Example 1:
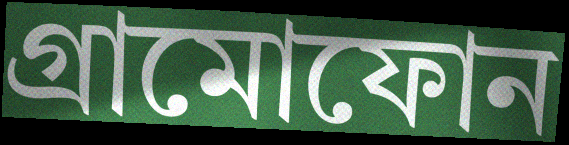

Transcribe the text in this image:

গ্ৰামোফোন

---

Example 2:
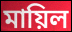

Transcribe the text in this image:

মায়িল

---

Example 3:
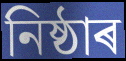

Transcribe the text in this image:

নিষ্ঠাৰ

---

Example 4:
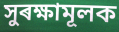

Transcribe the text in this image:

সুৰক্ষামূলক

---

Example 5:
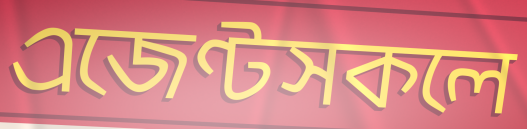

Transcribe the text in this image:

এজেণ্টসকলে